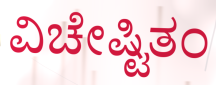
ವಿಚೇಷ್ಟಿತಂ